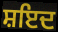
ਸ਼ਇਦ